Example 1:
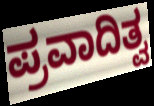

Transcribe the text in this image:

ಪ್ರವಾದಿತ್ವ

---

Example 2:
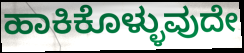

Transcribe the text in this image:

ಹಾಕಿಕೊಳ್ಳುವುದೇ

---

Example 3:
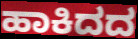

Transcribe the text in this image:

ಹಾಕಿದದ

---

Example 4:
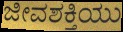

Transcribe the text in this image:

ಜೀವಶಕ್ತಿಯು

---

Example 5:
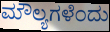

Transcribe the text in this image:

ಮೌಲ್ಯಗಳೆಂದು